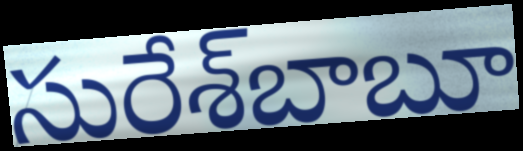
సురేశ్‌బాబూ